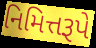
નિમિત્તરૂપે